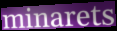
minarets